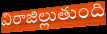
విరాజిల్లుతుంది